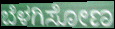
ಬೆಳಗಿಸೋಣ